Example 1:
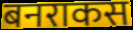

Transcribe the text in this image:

बनराकस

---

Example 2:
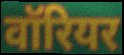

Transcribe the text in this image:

वॉरियर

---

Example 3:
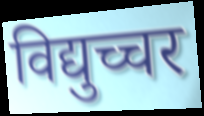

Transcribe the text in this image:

विद्युच्चर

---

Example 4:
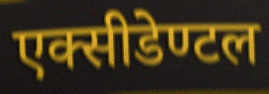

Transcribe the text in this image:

एक्सीडेण्टल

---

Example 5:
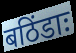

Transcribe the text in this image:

बठिंडाः